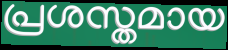
പ്രശസ്തമായ